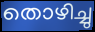
തൊഴിച്ചു